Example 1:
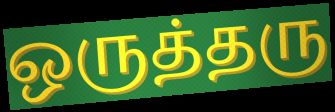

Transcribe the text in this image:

ஒருத்தரு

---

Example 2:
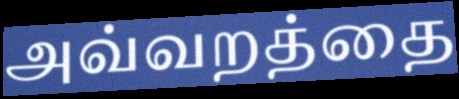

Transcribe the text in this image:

அவ்வறத்தை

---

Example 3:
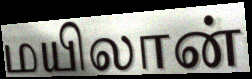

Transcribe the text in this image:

மயிலான்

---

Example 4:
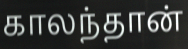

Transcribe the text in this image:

காலந்தான்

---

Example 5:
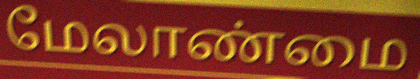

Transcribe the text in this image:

மேலாண்மை